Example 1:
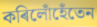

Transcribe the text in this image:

কৰিলোঁহেঁতেন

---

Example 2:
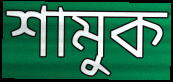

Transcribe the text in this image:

শামুক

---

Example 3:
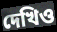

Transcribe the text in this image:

দেখিও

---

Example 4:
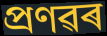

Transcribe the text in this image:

প্ৰণৱৰ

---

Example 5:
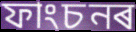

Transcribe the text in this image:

ফাংচনৰ